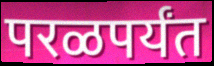
परळपर्यंत